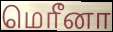
மெரீனா